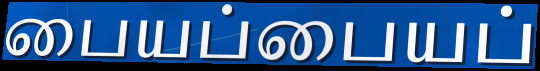
பையப்பையப்